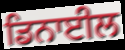
ਡਿਨਾਈਲ